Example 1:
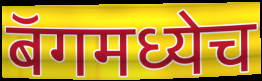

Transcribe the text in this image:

बॅगमध्येच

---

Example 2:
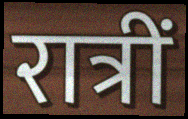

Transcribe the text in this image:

रात्रीं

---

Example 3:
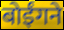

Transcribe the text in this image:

बोईंगने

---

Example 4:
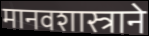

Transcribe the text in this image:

मानवशास्त्राने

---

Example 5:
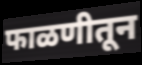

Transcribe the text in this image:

फाळणीतून